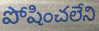
పోషించలేని